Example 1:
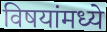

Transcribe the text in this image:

विषयांमध्ये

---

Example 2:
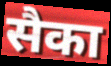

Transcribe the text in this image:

सैका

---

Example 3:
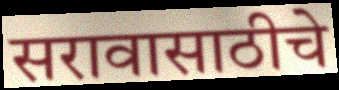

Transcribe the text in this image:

सरावासाठीचे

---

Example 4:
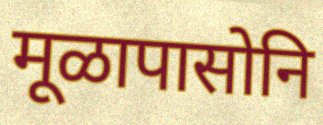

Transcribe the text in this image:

मूळापासोनि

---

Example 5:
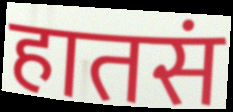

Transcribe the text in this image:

हातसं